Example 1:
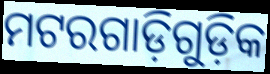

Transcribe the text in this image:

ମଟରଗାଡ଼ିଗୁଡ଼ିକ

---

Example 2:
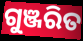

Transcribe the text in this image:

ଗୁଞ୍ଜରିତ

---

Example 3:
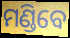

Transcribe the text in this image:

ମଣ୍ଡିବେ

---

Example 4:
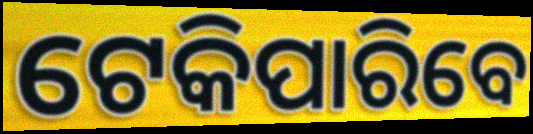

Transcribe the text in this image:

ଟେକିପାରିବେ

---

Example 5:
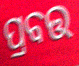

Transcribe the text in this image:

ପ୍ରବତ୍ତ